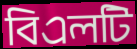
বিএলটি